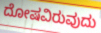
ದೋಷವಿರುವುದು